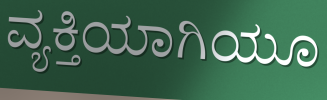
ವ್ಯಕ್ತಿಯಾಗಿಯೂ